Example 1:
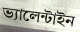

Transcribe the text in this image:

ভ্যালেন্টাইন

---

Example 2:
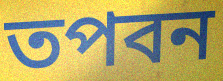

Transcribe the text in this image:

তপবন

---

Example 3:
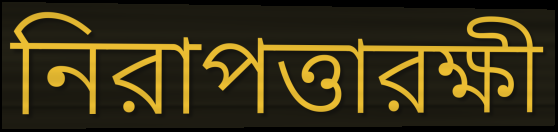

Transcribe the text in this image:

নিরাপত্তারক্ষী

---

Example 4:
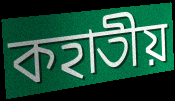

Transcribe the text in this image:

কহাতীয়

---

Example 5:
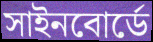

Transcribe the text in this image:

সাইনবোর্ডে